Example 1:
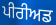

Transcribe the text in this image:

ਪੀਰੀਅਡ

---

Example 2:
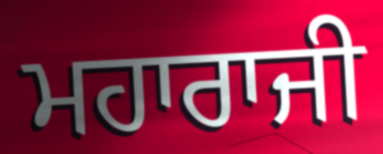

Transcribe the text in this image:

ਮਹਾਰਾਜੀ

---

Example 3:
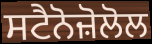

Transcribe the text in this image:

ਸਟੈਨੋਜ਼ੋਲੋਲ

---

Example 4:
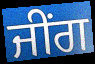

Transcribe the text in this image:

ਜੀਂਗ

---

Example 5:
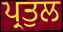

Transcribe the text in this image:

ਪ੍ਰਤੁਲ